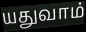
யதுவாம்